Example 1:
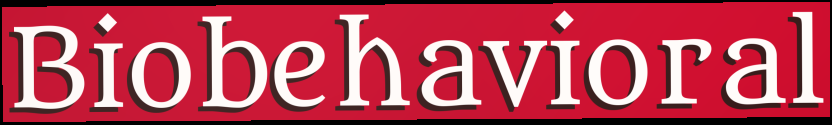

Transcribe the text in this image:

Biobehavioral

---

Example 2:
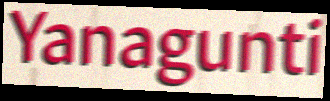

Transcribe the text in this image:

Yanagunti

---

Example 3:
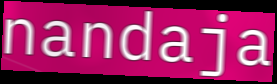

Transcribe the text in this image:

nandaja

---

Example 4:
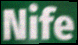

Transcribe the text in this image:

Nife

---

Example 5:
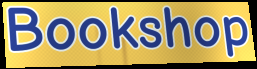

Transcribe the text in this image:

Bookshop